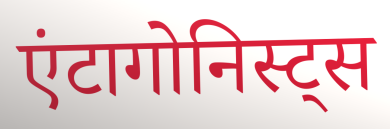
एंटागोनिस्ट्स